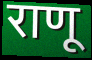
राणू